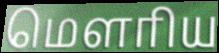
மௌரிய